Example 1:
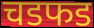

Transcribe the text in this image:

चडफड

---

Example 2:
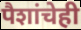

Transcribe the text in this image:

पैशांचेही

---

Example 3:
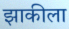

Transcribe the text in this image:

झाकीला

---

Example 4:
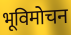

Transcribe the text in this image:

भूविमोचन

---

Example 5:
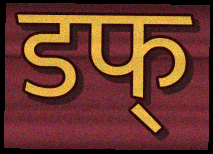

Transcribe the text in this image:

डफ्